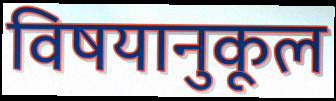
विषयानुकूल